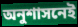
অনুশাসনেই